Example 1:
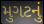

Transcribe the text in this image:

મુગટનું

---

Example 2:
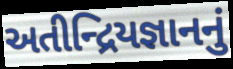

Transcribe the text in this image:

અતીન્દ્રિયજ્ઞાનનું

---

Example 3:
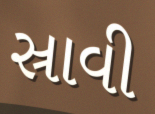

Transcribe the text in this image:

સ્રાવી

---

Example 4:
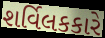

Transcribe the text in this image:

શર્વિલકકારે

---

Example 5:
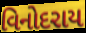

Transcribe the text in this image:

વિનોદરાય